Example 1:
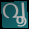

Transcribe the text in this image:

വൂ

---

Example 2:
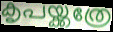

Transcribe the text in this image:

കൃപയ്ക്കത്രേ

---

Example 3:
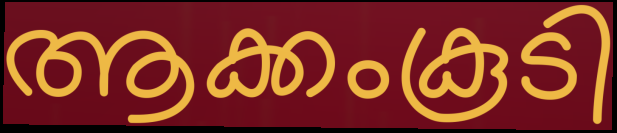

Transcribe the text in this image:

ആക്കംകൂടി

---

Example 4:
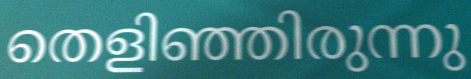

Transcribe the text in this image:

തെളിഞ്ഞിരുന്നു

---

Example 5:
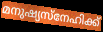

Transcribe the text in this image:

മനുഷ്യസ്നേഹിക്ക്